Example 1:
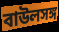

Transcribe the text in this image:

বাউলসঙ্গ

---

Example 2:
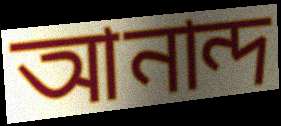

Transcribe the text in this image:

আনান্দ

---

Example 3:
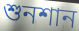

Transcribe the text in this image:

শুনশান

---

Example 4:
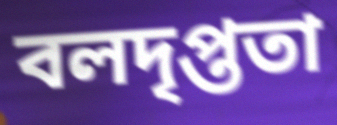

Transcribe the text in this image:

বলদৃপ্ততা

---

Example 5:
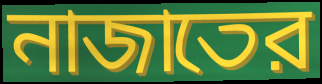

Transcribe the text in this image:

নাজাতের